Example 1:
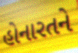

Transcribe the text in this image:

હોનારતને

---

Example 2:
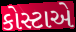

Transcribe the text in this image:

કોસ્ટાએ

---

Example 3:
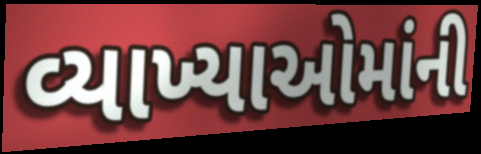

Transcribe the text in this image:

વ્યાખ્યાઓમાંની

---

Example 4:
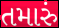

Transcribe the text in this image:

તમારું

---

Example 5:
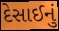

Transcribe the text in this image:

દેસાઈનું